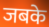
जबके